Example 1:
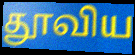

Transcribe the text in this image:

தூவிய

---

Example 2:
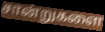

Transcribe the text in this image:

சான்றுகளை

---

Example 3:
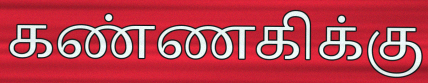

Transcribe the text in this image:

கண்ணகிக்கு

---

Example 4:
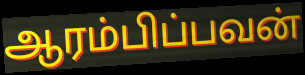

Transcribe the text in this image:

ஆரம்பிப்பவன்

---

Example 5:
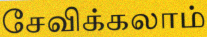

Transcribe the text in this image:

சேவிக்கலாம்